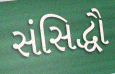
સંસિદ્ધૌ